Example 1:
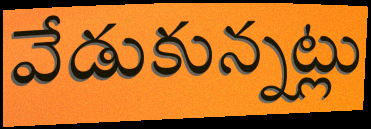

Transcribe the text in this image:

వేడుకున్నట్లు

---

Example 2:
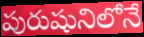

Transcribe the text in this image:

పురుషునిలోనే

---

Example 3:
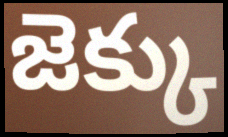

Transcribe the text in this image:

జెక్కు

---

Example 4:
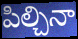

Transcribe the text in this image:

పిల్చినా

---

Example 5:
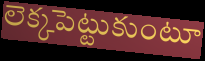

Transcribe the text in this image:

లెక్కపెట్టుకుంటూ